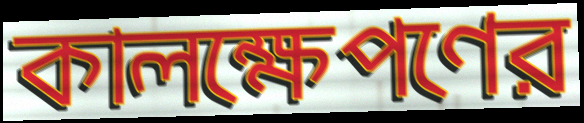
কালক্ষেপণের